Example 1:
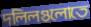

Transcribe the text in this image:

দলিলগুলোতে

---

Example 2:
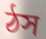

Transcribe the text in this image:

ঠস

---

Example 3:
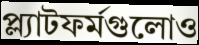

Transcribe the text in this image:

প্ল্যাটফর্মগুলোও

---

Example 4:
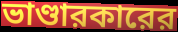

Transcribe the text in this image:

ভাণ্ডারকারের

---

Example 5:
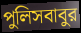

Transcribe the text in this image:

পুলিসবাবুর